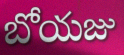
బోయజు